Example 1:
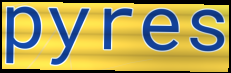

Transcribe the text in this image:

pyres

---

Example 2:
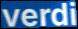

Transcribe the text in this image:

verdi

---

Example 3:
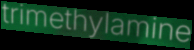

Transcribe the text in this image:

trimethylamine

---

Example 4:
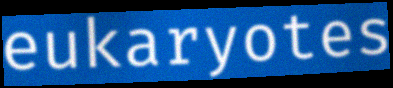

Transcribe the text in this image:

eukaryotes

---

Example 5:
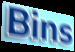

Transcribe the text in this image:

Bins